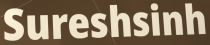
Sureshsinh